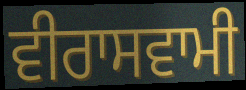
ਵੀਰਾਸਵਾਮੀ